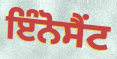
ਇੰਨੋਸੈਂਟ